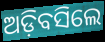
ଅଡ଼ିବସିଲେ